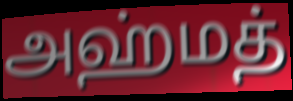
அஹ்மத்